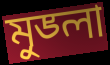
মুঙ্লা